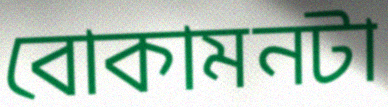
বোকামনটা